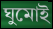
ঘুমোই